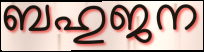
ബഹുജന